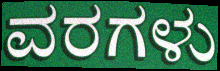
ವರಗಳು